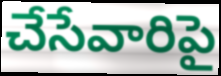
చేసేవారిపై